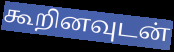
கூறினவுடன்